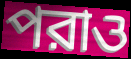
পরাও